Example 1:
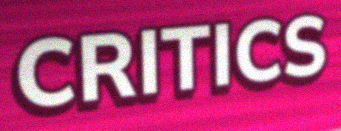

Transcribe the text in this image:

CRITICS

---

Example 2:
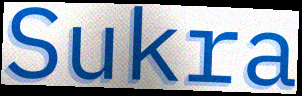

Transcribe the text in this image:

Sukra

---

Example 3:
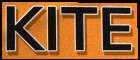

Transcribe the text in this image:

KITE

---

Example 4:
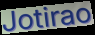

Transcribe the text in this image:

Jotirao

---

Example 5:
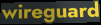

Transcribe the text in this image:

wireguard